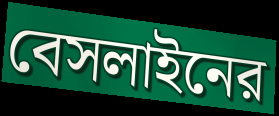
বেসলাইনের